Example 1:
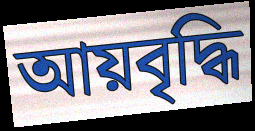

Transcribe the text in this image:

আয়বৃদ্ধি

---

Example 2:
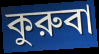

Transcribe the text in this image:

কুরুবা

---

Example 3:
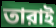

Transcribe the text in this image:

তারাই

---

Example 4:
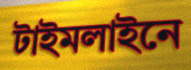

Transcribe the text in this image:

টাইমলাইনে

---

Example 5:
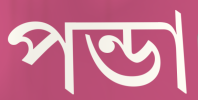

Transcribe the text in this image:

পন্ডা